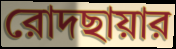
রোদছায়ার